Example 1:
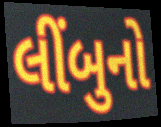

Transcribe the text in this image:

લીંબુનો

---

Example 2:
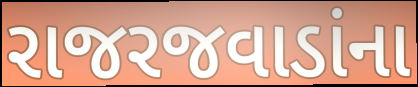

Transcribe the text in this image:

રાજરજવાડાંના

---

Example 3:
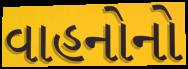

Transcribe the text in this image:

વાહનોનો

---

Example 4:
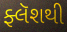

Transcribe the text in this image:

ફ્લૅશથી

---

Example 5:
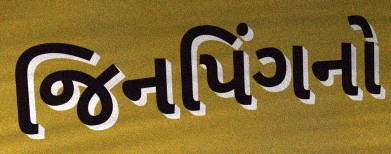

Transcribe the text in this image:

જિનપિંગનો